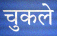
चुकले